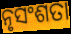
ନୃସଂଶତା